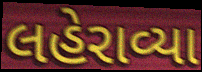
લહેરાવ્યા